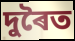
দুৰৈত